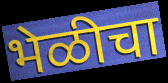
भेळीचा